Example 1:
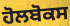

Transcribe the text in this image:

ਹੋਲਬੋਕਸ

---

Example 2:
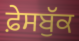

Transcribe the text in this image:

ਫ਼ੇਸਬੁੱਕ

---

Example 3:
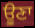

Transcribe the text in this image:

ਊਣਾ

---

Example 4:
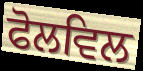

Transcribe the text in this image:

ਫੋਲਵਿਲ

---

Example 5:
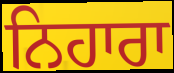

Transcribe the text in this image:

ਨਿਹਾਰਾ